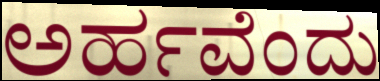
ಅರ್ಹವೆಂದು